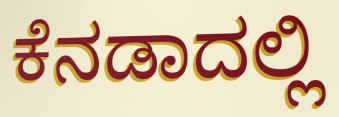
ಕೆನಡಾದಲ್ಲಿ